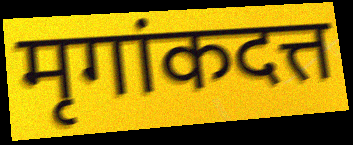
मृगांकदत्त